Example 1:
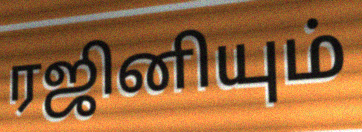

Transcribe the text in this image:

ரஜினியும்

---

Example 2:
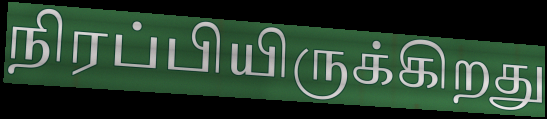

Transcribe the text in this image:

நிரப்பியிருக்கிறது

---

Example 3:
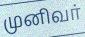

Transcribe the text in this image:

முனிவர்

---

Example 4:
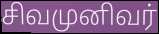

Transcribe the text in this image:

சிவமுனிவர்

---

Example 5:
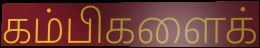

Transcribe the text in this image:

கம்பிகளைக்